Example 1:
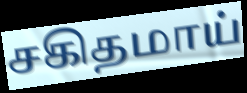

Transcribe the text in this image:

சகிதமாய்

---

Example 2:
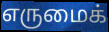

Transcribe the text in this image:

எருமைக்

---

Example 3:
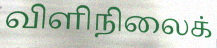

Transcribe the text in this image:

விளிநிலைக்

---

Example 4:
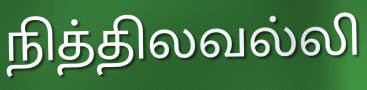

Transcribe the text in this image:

நித்திலவல்லி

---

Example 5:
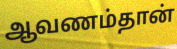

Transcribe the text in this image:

ஆவணம்தான்